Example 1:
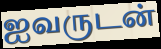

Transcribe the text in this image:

ஐவருடன்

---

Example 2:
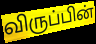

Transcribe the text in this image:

விருப்பின்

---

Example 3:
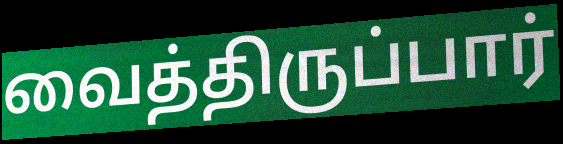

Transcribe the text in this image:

வைத்திருப்பார்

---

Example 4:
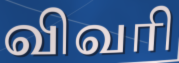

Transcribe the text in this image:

விவரி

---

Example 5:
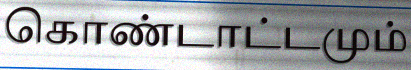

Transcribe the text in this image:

கொண்டாட்டமும்